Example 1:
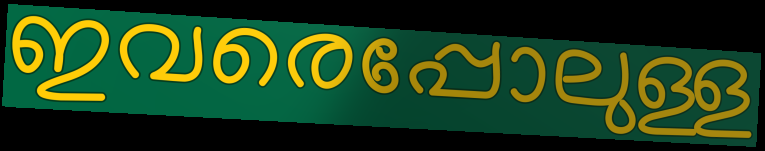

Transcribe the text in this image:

ഇവരെപ്പോലുള്ള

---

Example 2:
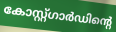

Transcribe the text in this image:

കോസ്റ്റ്ഗാർഡിന്റെ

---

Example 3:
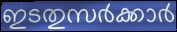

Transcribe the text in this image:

ഇടതുസർക്കാർ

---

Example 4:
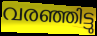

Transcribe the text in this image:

വരഞ്ഞിട്ടു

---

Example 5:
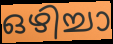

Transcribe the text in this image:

ഒഴിച്ചാ